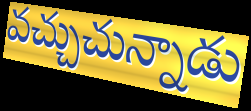
వచ్చుచున్నాడు